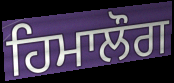
ਹਿਮਾਲੌਗ